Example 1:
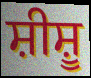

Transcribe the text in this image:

ਸ਼ੀਸ਼ੂ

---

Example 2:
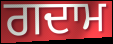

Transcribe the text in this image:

ਗਦਾਮ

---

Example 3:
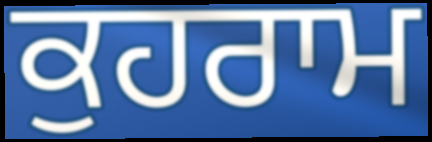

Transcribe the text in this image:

ਕੁਹਰਾਮ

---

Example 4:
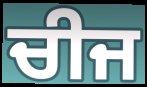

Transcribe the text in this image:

ਚੀਜ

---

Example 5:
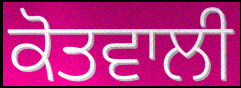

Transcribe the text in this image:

ਕੋਤਵਾਲੀ